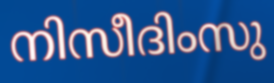
നിസീദിംസു